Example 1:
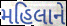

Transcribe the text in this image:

મહિલાને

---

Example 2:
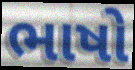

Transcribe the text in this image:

ભાષો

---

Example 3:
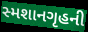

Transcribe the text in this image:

સ્મશાનગૃહની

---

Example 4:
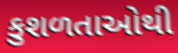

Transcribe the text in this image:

કુશળતાઓથી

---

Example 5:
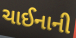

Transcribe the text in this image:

ચાઈનાની